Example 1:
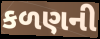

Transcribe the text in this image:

કળણની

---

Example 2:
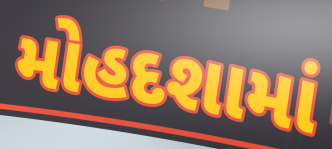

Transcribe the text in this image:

મોહદશામાં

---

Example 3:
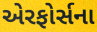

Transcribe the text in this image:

એરફોર્સના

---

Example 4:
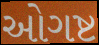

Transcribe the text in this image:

ઓગષ્ટ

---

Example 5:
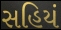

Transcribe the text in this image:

સહિયં